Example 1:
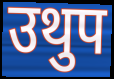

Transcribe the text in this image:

उथुप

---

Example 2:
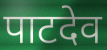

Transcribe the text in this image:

पाटदेव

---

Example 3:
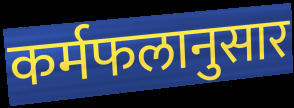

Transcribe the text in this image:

कर्मफलानुसार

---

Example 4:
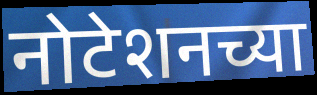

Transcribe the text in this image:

नोटेशनच्या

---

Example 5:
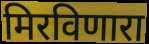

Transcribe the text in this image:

मिरविणारा